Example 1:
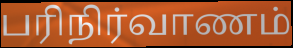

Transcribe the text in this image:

பரிநிர்வாணம்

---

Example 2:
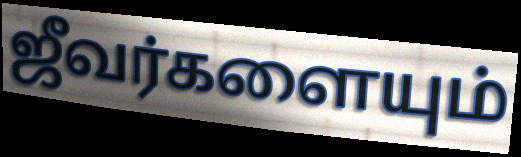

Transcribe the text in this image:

ஜீவர்களையும்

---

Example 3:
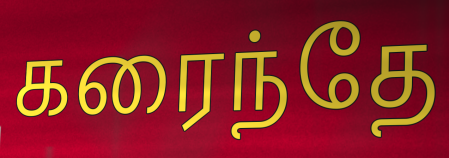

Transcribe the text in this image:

கரைந்தே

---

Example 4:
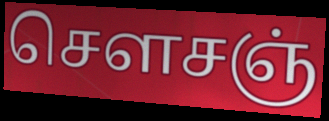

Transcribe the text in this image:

செளசஞ்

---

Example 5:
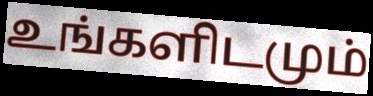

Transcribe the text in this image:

உங்களிடமும்